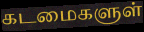
கடமைகளுள்